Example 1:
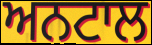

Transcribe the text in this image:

ਅਨਟਾਲ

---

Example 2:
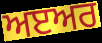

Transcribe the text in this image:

ਅੲਅਰ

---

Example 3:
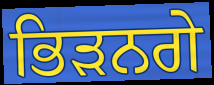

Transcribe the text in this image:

ਭਿੜਨਗੇ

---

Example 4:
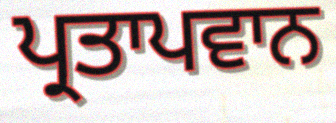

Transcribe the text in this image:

ਪ੍ਰਤਾਪਵਾਨ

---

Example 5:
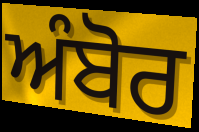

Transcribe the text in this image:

ਅੰਬੋਰ